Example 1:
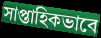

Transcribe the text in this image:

সাপ্তাহিকভাবে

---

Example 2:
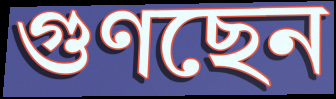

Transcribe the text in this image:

গুণছেন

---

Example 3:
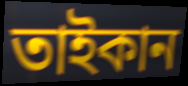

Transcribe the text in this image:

তাইকান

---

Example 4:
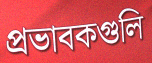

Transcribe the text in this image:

প্রভাবকগুলি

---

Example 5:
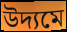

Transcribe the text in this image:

উদ্যমে